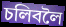
চলিবলৈ